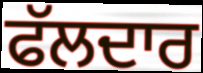
ਫੱਲਦਾਰ